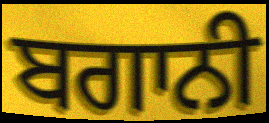
ਬਗਾਨੀ